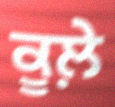
ਕੂਲ਼ੇ